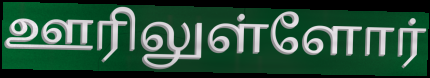
ஊரிலுள்ளோர்